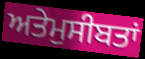
ਅਤੇਮੁਸੀਬਤਾਂ